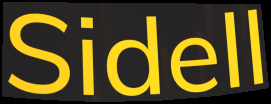
Sidell